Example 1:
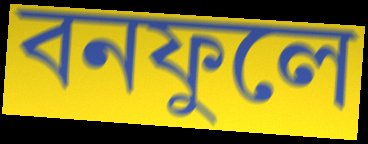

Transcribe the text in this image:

বনফুলে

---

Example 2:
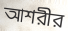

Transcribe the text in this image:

আশরীর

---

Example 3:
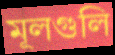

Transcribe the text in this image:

মূলগুলি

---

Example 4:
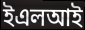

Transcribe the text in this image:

ইএলআই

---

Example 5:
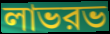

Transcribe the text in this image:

লাভরভ